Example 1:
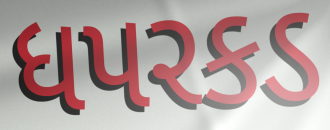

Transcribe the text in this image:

ધપરકડ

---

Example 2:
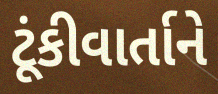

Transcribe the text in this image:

ટૂંકીવાર્તાને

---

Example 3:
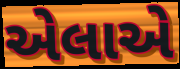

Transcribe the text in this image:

એલાએ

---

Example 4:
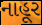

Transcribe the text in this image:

નાહૂર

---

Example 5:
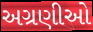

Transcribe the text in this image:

અગ્રણીઓ